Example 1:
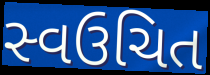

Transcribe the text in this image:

સ્વઉચિત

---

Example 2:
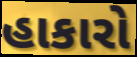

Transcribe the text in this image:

હાકારો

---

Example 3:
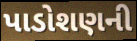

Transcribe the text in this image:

પાડોશણની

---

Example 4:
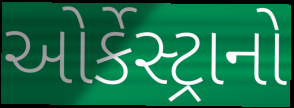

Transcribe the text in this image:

ઓર્કેસ્ટ્રાનો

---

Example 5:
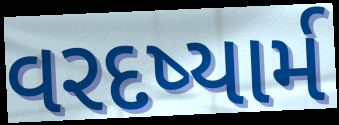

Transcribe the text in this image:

વરદષ્યાર્મ